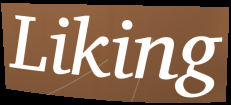
Liking